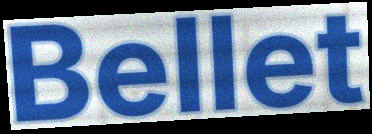
Bellet